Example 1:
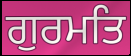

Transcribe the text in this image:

ਗੁਰਮਤਿ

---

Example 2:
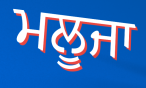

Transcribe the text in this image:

ਮਲੂਜਾ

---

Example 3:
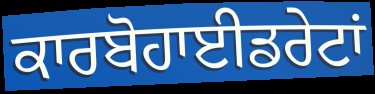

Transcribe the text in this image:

ਕਾਰਬੋਹਾਈਡਰੇਟਾਂ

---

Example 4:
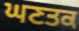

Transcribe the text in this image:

ਘਣਤਕ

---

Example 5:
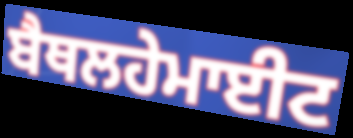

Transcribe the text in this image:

ਬੈਥਲਹੇਮਾਈਟ